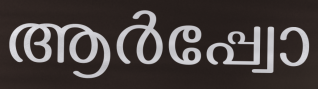
ആർപ്പ്വോ